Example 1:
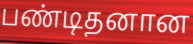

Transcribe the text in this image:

பண்டிதனான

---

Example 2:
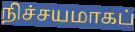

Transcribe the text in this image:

நிச்சயமாகப்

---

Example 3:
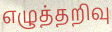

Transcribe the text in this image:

எழுத்தறிவு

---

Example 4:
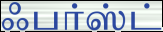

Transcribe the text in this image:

ஃபர்ஸ்ட்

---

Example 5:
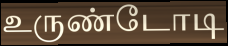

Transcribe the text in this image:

உருண்டோடி